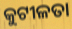
କୁଟୀଳତା